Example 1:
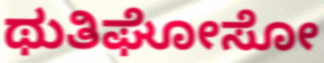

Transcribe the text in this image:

ಥುತಿಘೋಸೋ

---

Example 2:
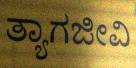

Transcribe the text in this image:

ತ್ಯಾಗಜೀವಿ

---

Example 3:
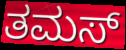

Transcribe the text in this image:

ತಮಸ್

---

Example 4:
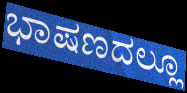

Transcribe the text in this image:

ಭಾಷಣದಲ್ಲೂ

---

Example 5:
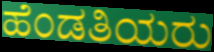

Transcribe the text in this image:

ಹೆಂಡತಿಯರು